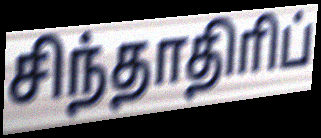
சிந்தாதிரிப்